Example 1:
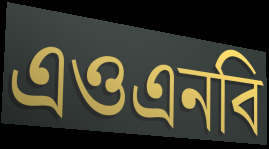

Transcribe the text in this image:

এওএনবি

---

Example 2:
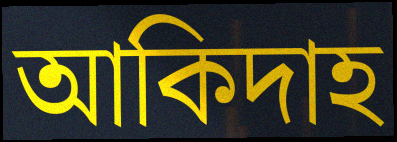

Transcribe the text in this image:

আকিদাহ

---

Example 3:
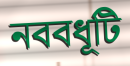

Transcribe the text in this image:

নববধূটি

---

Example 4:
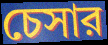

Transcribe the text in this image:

চেসার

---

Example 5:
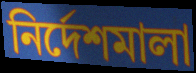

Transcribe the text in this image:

নির্দেশমালা